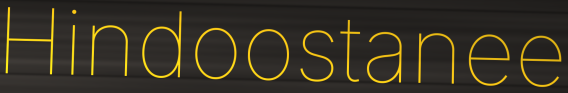
Hindoostanee